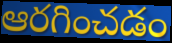
ఆరగించడం